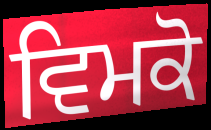
ਵਿਮਕੋ